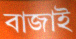
বাজাই